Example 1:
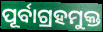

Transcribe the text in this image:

ପୂର୍ବାଗ୍ରହମୁକ୍ତ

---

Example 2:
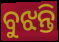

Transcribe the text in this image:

ବୁଝନ୍ତି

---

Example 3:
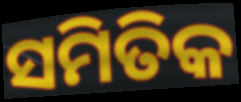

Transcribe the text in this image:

ସମିତିକ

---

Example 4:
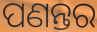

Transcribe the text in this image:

ପଣନ୍ତର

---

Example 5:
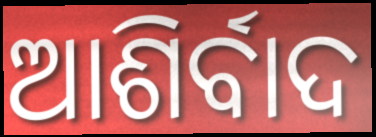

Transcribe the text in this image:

ଆଶିର୍ବାଦ